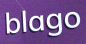
blago